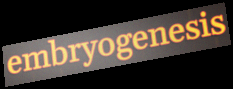
embryogenesis